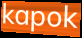
kapok